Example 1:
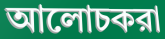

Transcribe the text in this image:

আলোচকরা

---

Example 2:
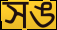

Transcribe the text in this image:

সঙ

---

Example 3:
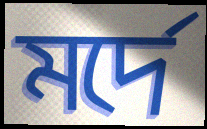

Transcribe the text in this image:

মর্দে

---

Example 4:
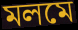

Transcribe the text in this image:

মলমে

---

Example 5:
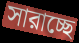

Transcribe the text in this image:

সারাচ্ছে